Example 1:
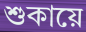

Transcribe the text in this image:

শুকায়ে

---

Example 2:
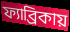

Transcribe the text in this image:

ফ্যাব্রিকায়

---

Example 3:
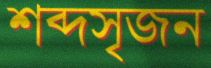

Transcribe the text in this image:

শব্দসৃজন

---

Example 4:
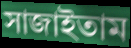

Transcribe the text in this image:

সাজাইতাম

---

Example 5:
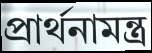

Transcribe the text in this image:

প্রার্থনামন্ত্র